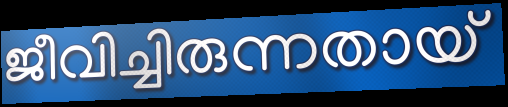
ജീവിച്ചിരുന്നതായ്